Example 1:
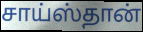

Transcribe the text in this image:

சாய்ஸ்தான்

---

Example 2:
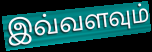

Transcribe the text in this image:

இவ்வளவும்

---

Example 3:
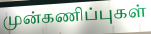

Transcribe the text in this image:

முன்கணிப்புகள்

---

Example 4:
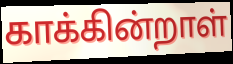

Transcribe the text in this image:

காக்கின்றாள்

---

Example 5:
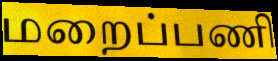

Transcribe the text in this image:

மறைப்பணி